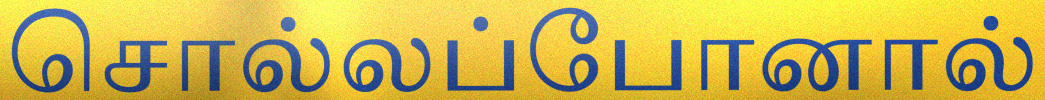
சொல்லப்போனால்